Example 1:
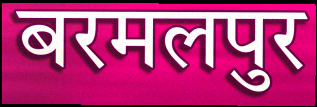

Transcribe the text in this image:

बरमलपुर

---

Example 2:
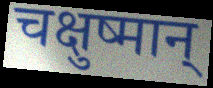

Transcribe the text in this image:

चक्षुष्मान्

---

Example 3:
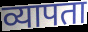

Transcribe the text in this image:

व्यापता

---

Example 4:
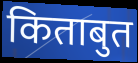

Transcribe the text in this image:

किताबुत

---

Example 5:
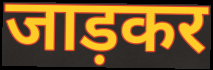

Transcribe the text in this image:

जाड़कर